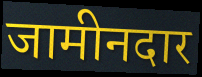
जामीनदार